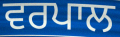
ਵਰਪਾਲ